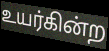
உயர்கின்ற